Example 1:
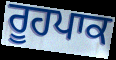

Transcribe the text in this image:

ਰੂਹਪਾਕ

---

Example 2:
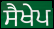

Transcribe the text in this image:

ਸੈਖੇਪ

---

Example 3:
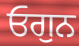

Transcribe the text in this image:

ਓਗੁਨ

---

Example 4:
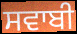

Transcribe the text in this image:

ਸਵਾਬੀ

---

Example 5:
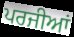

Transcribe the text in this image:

ਪਰਜੀਆਂ